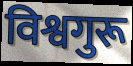
विश्वगुरू